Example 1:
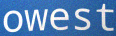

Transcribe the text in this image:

owest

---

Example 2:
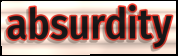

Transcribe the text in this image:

absurdity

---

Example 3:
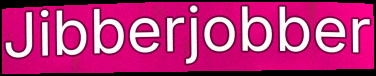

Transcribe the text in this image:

Jibberjobber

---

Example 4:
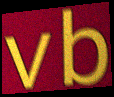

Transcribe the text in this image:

vb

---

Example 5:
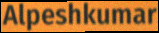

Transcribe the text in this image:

Alpeshkumar